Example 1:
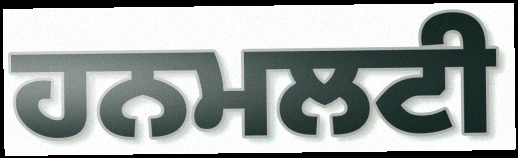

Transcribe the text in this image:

ਹਨਮਲਟੀ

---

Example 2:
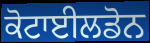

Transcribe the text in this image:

ਕੋਟਾਈਲਡੋਨ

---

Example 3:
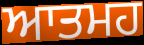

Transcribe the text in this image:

ਆਤਮਹ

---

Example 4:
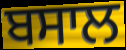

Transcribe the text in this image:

ਬਸਾਲ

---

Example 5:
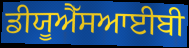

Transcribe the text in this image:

ਡੀਯੂਐੱਸਆਈਬੀ